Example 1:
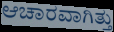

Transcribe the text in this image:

ಆಚಾರವಾಗಿತ್ತು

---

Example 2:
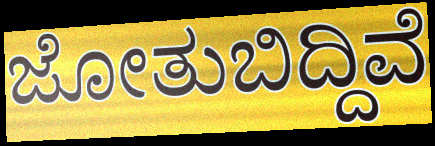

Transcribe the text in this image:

ಜೋತುಬಿದ್ದಿವೆ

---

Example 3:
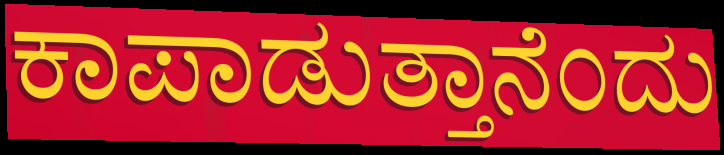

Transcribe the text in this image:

ಕಾಪಾಡುತ್ತಾನೆಂದು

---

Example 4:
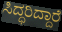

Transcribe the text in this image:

ಸಿದ್ಧರಿದ್ದಾರೆ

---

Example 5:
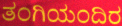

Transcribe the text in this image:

ತಂಗಿಯಂದಿರ